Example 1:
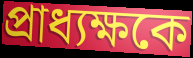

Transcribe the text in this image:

প্রাধ্যক্ষকে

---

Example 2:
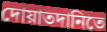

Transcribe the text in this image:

দোয়াতদানিতে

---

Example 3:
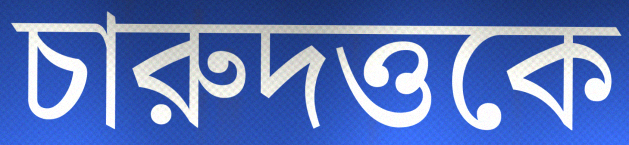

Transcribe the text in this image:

চারুদত্তকে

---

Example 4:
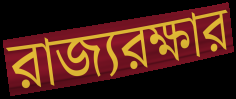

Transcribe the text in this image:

রাজ্যরক্ষার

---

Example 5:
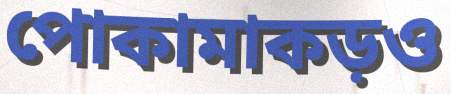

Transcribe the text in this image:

পোকামাকড়ও